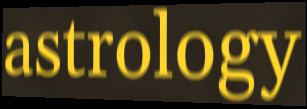
astrology